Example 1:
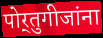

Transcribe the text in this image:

पोर्तुगीजांना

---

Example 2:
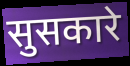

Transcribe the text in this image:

सुसकारे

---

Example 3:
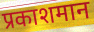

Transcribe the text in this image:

प्रकाशमान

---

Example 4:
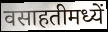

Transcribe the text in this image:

वसाहतीमध्यें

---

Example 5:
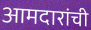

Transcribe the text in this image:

आमदारांची